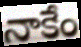
నాకేం